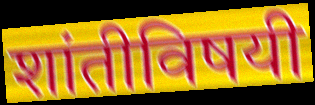
शांतीविषयी